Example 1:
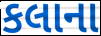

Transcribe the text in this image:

કલાના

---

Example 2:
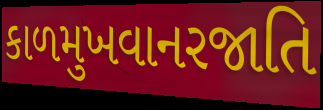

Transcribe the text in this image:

કાળમુખવાનરજાતિ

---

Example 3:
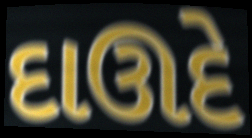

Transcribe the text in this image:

દાઊદે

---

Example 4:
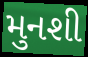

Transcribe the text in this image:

મુનશી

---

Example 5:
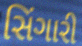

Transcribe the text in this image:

સિંગારી